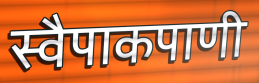
स्वैपाकपाणी